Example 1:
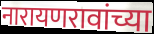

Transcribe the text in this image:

नारायणरावांच्या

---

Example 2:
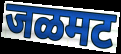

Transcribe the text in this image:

जळमट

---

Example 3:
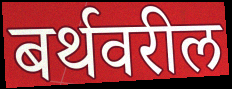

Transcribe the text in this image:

बर्थवरील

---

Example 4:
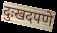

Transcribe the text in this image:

दुःखदपणे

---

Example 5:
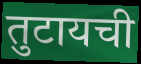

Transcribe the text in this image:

तुटायची